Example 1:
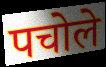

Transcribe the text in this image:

पचोले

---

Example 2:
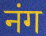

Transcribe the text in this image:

नंग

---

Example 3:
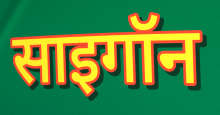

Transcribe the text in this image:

साइगॉन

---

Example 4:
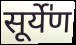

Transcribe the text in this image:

सूर्ये॑ण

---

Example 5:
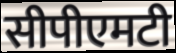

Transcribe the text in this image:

सीपीएमटी